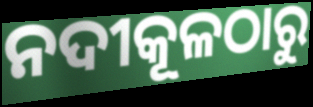
ନଦୀକୂଳଠାରୁ